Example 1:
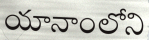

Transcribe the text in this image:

యానాంలోని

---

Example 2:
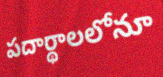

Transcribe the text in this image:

పదార్థాలలోనూ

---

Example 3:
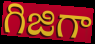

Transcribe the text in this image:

గిజిగా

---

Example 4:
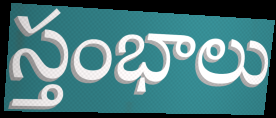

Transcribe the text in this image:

స్తంభాలు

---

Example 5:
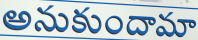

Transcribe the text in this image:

అనుకుందామా